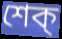
শেক্